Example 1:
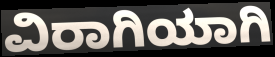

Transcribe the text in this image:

ವಿರಾಗಿಯಾಗಿ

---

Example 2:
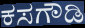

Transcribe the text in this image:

ಕಸಗೌಡಿ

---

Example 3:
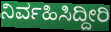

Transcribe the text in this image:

ನಿರ್ವಹಿಸಿದ್ದೀರಿ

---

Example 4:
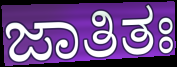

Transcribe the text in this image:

ಜಾತಿತಃ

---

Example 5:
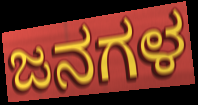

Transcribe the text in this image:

ಜನಗಳ